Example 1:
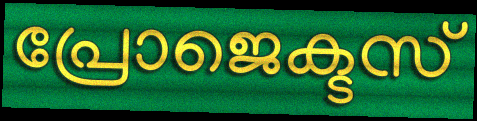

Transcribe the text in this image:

പ്രോജെക്ടസ്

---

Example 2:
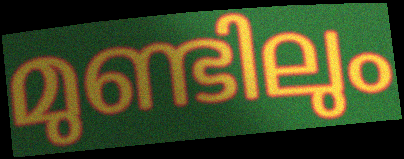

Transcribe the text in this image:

മുണ്ടിലും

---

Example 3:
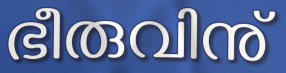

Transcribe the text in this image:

ഭീരുവിനു്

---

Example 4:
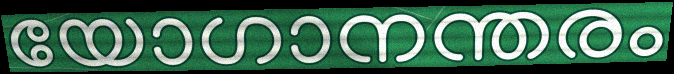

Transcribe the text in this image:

യോഗാനന്തരം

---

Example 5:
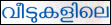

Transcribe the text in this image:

വീടുകളിലെ